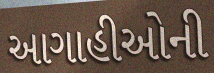
આગાહીઓની